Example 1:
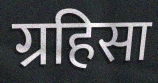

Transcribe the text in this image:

ग्रहिसा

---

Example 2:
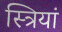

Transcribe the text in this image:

स्त्रियां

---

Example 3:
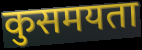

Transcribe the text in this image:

कुसमयता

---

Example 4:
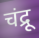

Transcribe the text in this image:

चंद्रू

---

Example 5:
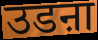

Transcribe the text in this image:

उडऩा